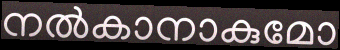
നൽകാനാകുമോ